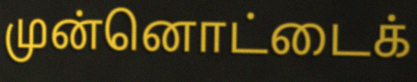
முன்னொட்டைக்